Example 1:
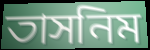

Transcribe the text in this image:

তাসনিম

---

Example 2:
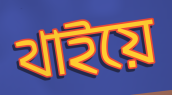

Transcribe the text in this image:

থাইয়ে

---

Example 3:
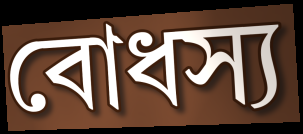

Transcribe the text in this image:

বোধস্য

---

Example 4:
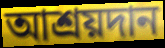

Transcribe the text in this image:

আশ্রয়দান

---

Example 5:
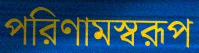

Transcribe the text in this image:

পরিণামস্বরূপ